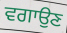
ਵਗਾਉਣ